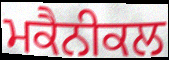
ਮਕੈਨੀਕਲ